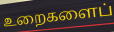
உறைகளைப்